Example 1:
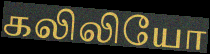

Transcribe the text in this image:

கலிலியோ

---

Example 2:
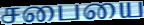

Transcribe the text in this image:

சபையை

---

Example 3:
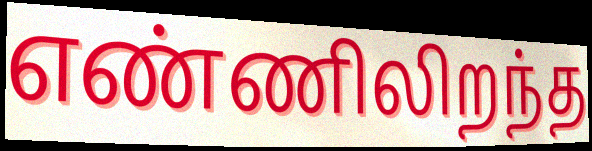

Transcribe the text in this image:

எண்ணிலிறந்த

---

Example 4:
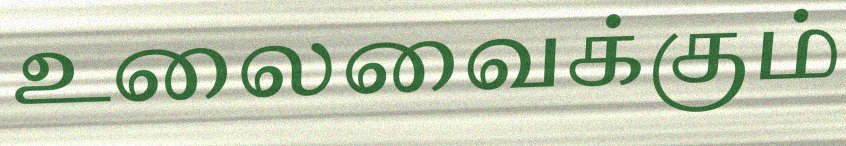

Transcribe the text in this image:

உலைவைக்கும்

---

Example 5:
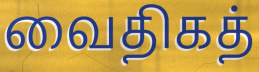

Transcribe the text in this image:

வைதிகத்